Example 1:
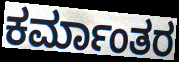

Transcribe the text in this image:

ಕರ್ಮಾಂತರ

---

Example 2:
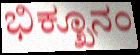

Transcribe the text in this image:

ಭಿಕ್ಖೂನಂ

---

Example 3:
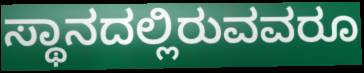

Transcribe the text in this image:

ಸ್ಥಾನದಲ್ಲಿರುವವರೂ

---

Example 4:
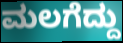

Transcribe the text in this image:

ಮಲಗೆದ್ದು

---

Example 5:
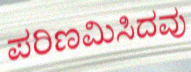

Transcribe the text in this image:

ಪರಿಣಮಿಸಿದವು